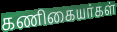
கணிகையர்கள்